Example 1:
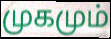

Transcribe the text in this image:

முகமும்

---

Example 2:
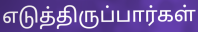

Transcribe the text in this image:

எடுத்திருப்பார்கள்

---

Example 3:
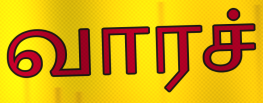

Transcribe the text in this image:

வாரச்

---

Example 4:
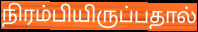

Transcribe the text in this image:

நிரம்பியிருப்பதால்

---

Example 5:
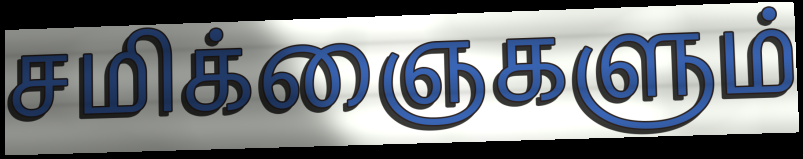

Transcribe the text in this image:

சமிக்ஞைகளும்